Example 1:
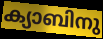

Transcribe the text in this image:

ക്യാബിനു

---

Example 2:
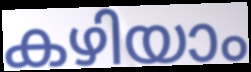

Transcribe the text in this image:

കഴിയാം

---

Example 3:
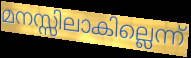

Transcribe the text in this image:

മനസ്സിലാകില്ലെന്ന്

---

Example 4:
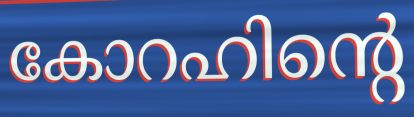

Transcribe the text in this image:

കോറഹിന്റെ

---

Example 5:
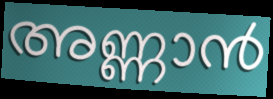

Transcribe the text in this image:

അണ്ണാൻ